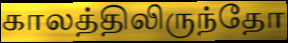
காலத்திலிருந்தோ